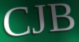
CJB